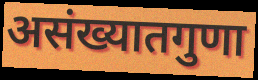
असंख्यातगुणा